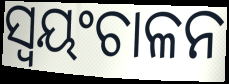
ସ୍ବୟଂଚାଳନ